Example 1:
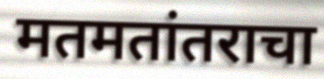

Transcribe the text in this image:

मतमतांतराचा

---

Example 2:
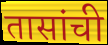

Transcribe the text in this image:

तासांची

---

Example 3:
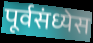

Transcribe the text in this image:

पूर्वसंध्येस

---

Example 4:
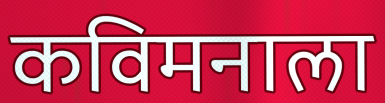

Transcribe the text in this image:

कविमनाला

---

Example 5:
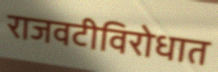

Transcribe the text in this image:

राजवटीविरोधात